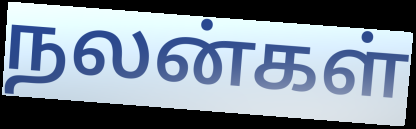
நலன்கள்